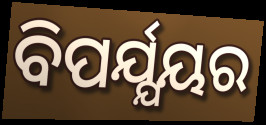
ବିପର୍ଯ୍ଯୟର